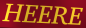
HEERE